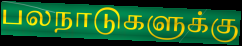
பலநாடுகளுக்கு